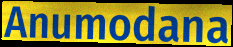
Anumodana